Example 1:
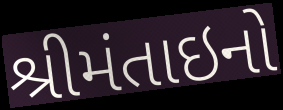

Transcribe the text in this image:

શ્રીમંતાઇનો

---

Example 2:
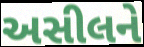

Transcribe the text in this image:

અસીલને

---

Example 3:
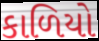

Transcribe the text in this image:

કાળિયો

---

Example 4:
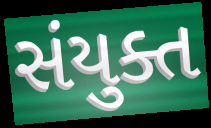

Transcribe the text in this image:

સંયુક્ત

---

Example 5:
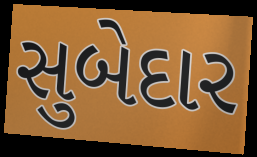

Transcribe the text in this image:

સુબેદાર